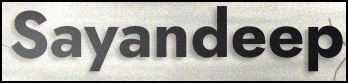
Sayandeep